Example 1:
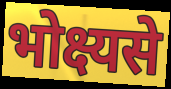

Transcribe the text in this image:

भोक्ष्यसे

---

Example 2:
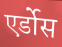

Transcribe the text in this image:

एर्डोस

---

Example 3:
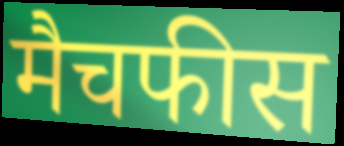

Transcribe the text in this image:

मैचफीस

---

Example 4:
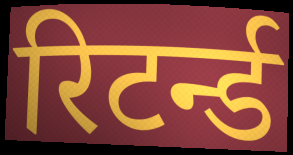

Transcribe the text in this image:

रिटर्न्ड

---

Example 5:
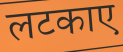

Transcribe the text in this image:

लटकाए